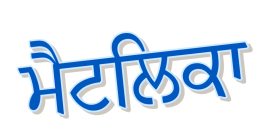
ਮੈਟਲਿਕਾ